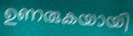
ഉണരുകയായി